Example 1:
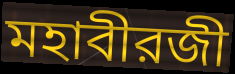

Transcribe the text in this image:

মহাবীরজী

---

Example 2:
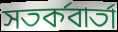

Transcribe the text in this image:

সতর্কবার্তা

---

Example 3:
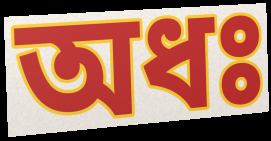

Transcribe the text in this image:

অধঃ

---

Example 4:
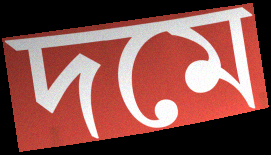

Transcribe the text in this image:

দমে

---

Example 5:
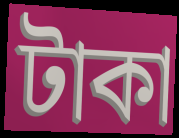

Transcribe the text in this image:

টাকা